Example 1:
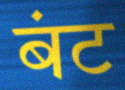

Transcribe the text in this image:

बंट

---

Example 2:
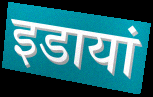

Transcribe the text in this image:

इडायां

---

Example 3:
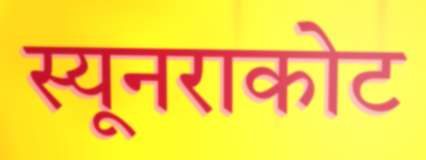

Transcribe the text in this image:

स्यूनराकोट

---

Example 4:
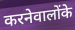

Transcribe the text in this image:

करनेवालोंके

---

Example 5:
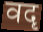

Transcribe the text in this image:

वदृ